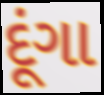
દૂંગા